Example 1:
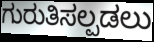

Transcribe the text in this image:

ಗುರುತಿಸಲ್ಪಡಲು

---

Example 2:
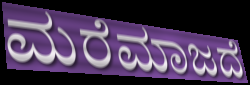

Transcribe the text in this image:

ಮರೆಮಾಜದೆ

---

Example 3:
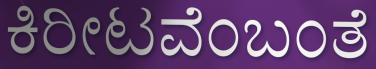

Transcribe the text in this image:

ಕಿರೀಟವೆಂಬಂತೆ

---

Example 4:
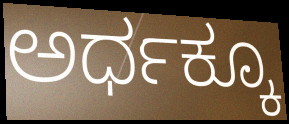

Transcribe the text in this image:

ಅರ್ಧಕ್ಕೂ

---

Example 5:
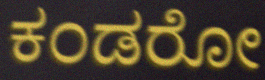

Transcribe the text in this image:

ಕಂಡರೋ